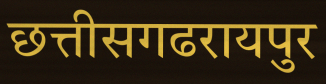
छत्तीसगढरायपुर